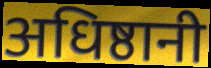
अधिष्ठानी